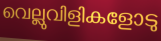
വെല്ലുവിളികളോടു